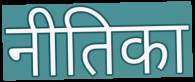
नीतिका